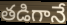
తడిగానే